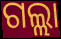
ଗଲ୍ଲା